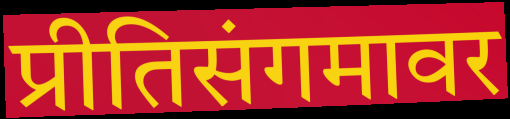
प्रीतिसंगमावर